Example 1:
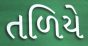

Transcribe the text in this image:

તળિયે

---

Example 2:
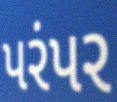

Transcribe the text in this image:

પરંપર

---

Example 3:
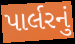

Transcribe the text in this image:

પાર્લરનું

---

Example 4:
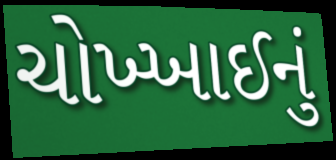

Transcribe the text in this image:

ચોખ્ખાઈનું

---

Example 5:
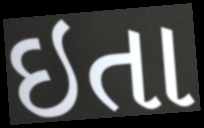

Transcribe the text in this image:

ઇતા